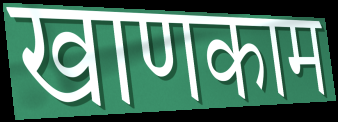
खाणकाम